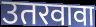
उतरवावा